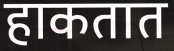
हाकतात